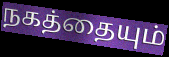
நகத்தையும்